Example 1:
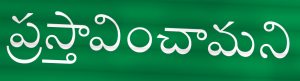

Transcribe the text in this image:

ప్రస్తావించామని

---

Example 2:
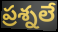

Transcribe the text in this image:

ప్రశ్నలే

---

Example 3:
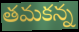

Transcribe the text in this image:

తమకన్న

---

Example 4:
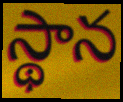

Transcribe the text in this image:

స్థాన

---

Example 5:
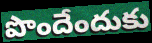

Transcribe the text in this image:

పొందేందుకు